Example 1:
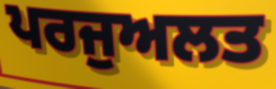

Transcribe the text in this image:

ਪਰਜੁਅਲਤ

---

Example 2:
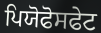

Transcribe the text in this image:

ਪਿਯੋਫੋਸਫੇਟ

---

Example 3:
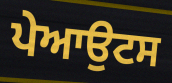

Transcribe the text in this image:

ਪੇਆਉਟਸ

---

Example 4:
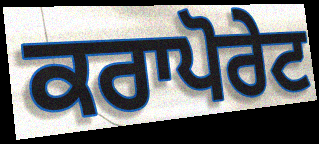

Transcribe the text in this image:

ਕਰਾਪੋਰੇਟ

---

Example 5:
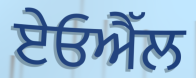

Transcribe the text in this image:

ਏਓਐੱਲ